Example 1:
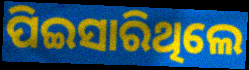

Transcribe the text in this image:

ପିଇସାରିଥିଲେ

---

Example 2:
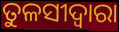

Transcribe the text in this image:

ତୁଳସୀଦ୍ବାରା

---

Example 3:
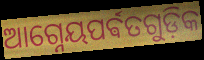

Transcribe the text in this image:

ଆଗ୍ନେୟପର୍ଵତଗୁଡ଼ିକ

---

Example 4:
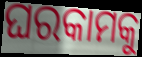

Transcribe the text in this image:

ଘରକାମକୁ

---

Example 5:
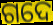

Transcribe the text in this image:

ଗଦେ